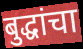
बुद्धांचा